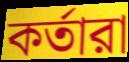
কর্তারা